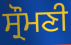
ਸ੍ਰੌਮਣੀ